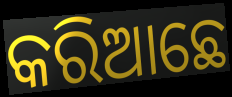
କରିଆଛେ